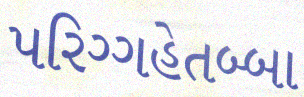
પરિગ્ગહેતબ્બા